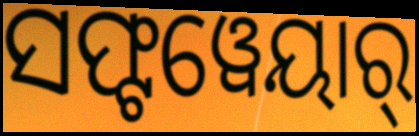
ସଫ୍ଟୱେୟାର୍